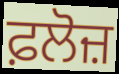
ਫ਼ਲੋਜ਼